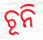
ଚୂନି